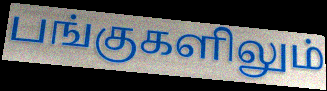
பங்குகளிலும்